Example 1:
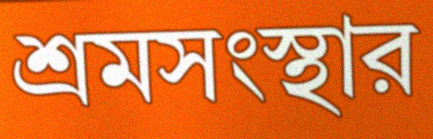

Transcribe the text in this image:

শ্রমসংস্থার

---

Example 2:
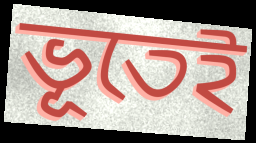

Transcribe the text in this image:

ভূতেই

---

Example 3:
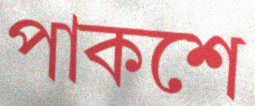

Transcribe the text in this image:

পাকশে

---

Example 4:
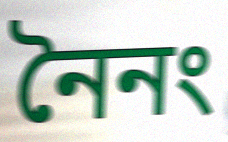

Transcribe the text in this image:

নৈনং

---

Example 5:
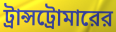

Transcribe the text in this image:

ট্রান্সট্রোমারের